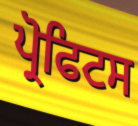
ਪ੍ਰੋਫਿਟਸ